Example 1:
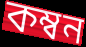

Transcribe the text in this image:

কম্বন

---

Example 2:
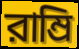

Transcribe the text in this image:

রাম্রি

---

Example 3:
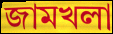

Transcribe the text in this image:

জামখলা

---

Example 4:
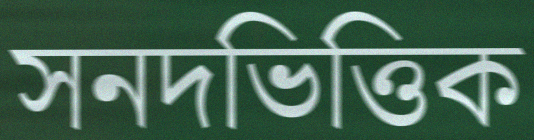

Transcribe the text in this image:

সনদভিত্তিক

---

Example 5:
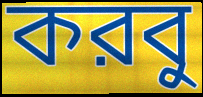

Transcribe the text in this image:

করবু